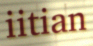
iitian